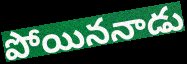
పోయిననాడు